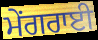
ਮੇਂਗਰਾਈ